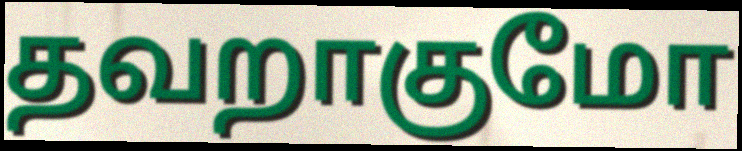
தவறாகுமோ